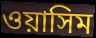
ওয়াসিম